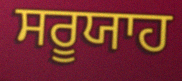
ਸਰੂਯਾਹ